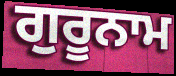
ਗੁਰੂਨਾਮ